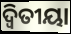
ଦ୍ବିତୀୟା